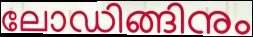
ലോഡിങ്ങിനും